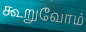
கூறுவோம்